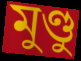
মুণ্ডু